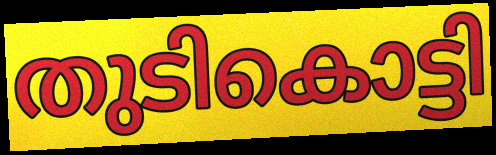
തുടികൊട്ടി